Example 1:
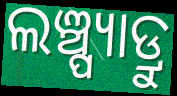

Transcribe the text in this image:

ଲଞ୍ଚ୍ପ୍ୟାଡ୍ରୁ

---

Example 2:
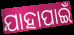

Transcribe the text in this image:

ଯାହାପାଇଁ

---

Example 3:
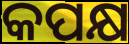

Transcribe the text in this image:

କପକ୍ଷ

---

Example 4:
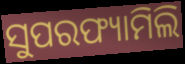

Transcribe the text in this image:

ସୁପରଫ୍ୟାମିଲି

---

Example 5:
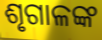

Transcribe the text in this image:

ଶୃଗାଳଙ୍କ